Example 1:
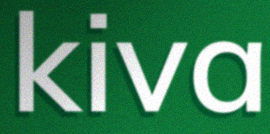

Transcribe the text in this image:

kiva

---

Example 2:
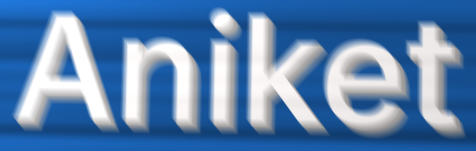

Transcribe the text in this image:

Aniket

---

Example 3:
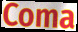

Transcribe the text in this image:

Coma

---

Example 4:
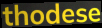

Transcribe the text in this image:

thodese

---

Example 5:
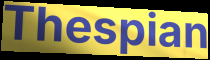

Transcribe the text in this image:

Thespian